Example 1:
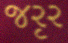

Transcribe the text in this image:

જરૃર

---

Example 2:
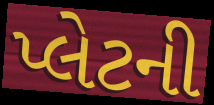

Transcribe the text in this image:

પ્લેટની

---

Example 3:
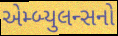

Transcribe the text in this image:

એમ્બ્યુલન્સનો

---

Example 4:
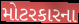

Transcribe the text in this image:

મોટરકારના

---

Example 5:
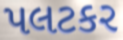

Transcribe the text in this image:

પલટકર